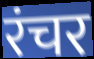
रंचर